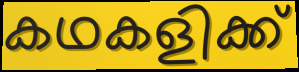
കഥകളിക്ക്